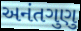
અનંતગુણુ